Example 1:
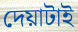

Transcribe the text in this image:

দেয়াটাই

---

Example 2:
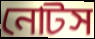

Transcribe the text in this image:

নোটস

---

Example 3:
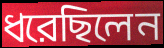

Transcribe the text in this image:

ধরেছিলেন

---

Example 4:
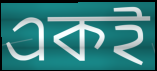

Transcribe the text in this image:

একই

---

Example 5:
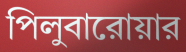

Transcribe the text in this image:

পিলুবারোয়ার